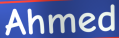
Ahmed